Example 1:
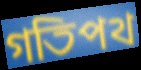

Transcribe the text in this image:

গতিপথ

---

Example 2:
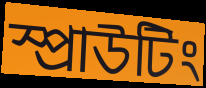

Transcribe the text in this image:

স্প্রাউটিং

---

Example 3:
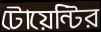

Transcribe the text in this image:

টোয়েন্টির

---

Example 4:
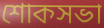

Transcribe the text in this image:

শোকসভা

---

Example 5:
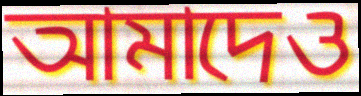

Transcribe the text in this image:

আমাদেও